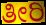
ತೀರಿ